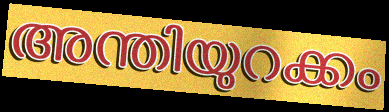
അന്തിയുറക്കം